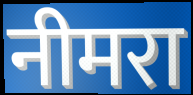
नीमरा